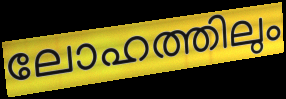
ലോഹത്തിലും